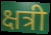
क्षत्री